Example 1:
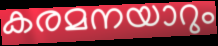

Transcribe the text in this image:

കരമനയാറും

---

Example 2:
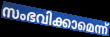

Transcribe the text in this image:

സംഭവിക്കാമെന്ന്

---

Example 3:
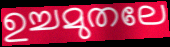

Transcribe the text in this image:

ഉച്ചമുതലേ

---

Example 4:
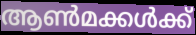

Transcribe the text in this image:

ആൺമക്കൾക്ക്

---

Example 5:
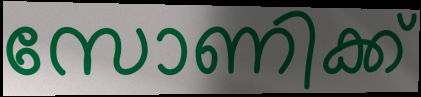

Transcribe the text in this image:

സോണിക്ക്